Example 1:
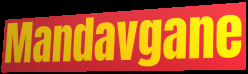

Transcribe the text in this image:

Mandavgane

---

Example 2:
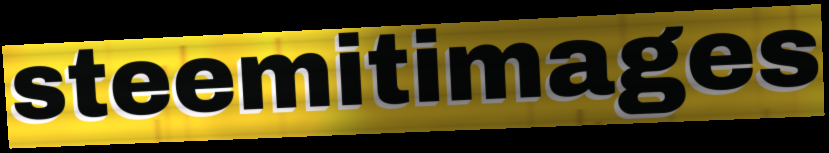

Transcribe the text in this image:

steemitimages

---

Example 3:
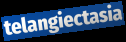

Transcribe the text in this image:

telangiectasia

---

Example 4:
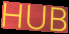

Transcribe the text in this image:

HUB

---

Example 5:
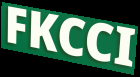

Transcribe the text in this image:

FKCCI